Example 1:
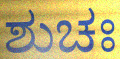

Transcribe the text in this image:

ಶುಚಃ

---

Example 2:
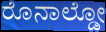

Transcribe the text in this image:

ರೊನಾಲ್ಡೋ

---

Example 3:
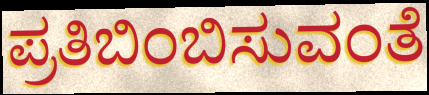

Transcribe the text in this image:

ಪ್ರತಿಬಿಂಬಿಸುವಂತೆ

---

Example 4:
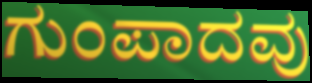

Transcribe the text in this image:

ಗುಂಪಾದವು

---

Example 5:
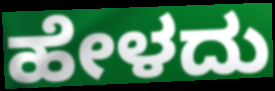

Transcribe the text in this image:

ಹೇಳದು